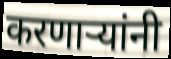
करणार्‍यांनी